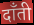
दाँती